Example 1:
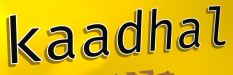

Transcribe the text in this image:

kaadhal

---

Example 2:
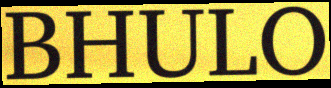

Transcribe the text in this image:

BHULO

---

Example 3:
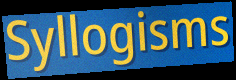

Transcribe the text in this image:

Syllogisms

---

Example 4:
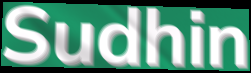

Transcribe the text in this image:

Sudhin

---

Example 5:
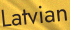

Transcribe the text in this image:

Latvian